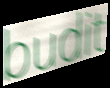
budit